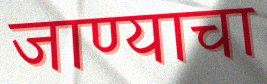
जाण्याचा